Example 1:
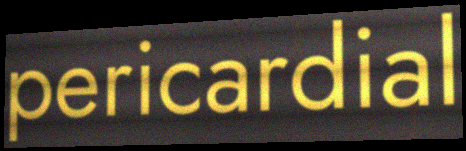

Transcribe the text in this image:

pericardial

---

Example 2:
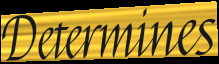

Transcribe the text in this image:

Determines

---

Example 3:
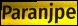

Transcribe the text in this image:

Paranjpe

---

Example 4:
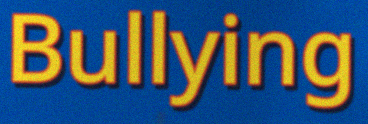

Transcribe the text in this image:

Bullying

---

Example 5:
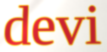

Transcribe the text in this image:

devi